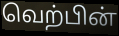
வெற்பின்